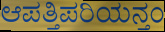
ಆಪತ್ತಿಪರಿಯನ್ತಂ